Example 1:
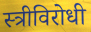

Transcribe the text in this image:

स्त्रीविरोधी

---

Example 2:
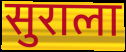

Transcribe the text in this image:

सुराला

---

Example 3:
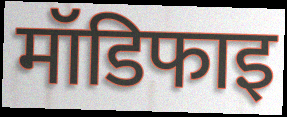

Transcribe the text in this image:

मॉडिफाइ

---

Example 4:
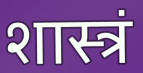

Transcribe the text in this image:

शास्त्रं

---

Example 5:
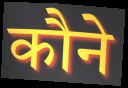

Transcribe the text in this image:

कौने